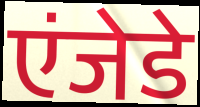
एंजेडे